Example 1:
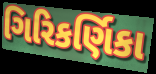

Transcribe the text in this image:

ગિરિકર્ણિકા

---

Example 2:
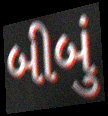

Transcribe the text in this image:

બીબું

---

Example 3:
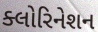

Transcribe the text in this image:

ક્લોરિનેશન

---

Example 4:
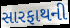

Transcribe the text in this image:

સારફાથની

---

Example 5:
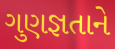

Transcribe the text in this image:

ગુણજ્ઞતાને